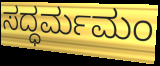
ಸದ್ಧರ್ಮಮಂ